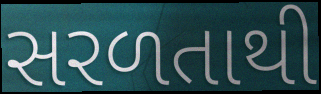
સરળતાથી